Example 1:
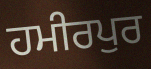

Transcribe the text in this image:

ਹਮੀਰਪੁਰ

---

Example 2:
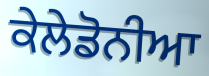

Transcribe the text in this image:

ਕੇਲੇਡੋਨੀਆ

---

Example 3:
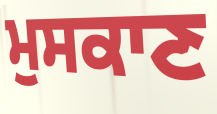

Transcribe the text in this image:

ਮੁਸਕਾਣ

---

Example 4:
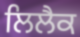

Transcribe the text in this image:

ਲਿਲੈਕ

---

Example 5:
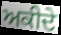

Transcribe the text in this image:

ਅਕੀਦੇ